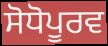
ਸੋਧੋਪੂਰਵ